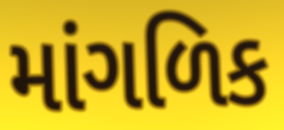
માંગળિક